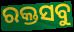
ରକ୍ତସବୁ